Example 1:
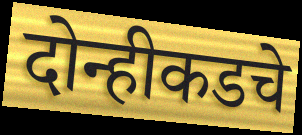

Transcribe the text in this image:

दोन्हीकडचे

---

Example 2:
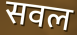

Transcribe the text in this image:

सवल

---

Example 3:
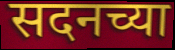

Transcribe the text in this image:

सदनच्या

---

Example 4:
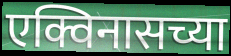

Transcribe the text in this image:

एक्विनासच्या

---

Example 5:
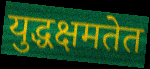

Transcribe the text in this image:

युद्धक्षमतेत